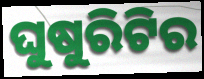
ଘୁଷୁରିଟିର